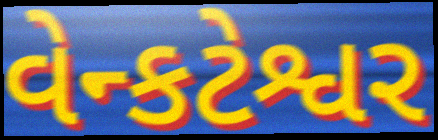
વેન્કટેશ્વર